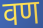
वण